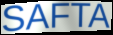
SAFTA